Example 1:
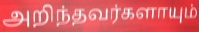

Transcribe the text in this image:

அறிந்தவர்களாயும்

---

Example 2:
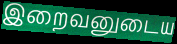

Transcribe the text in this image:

இறைவனுடைய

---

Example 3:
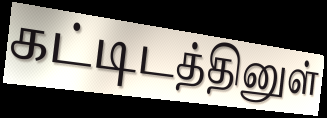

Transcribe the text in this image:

கட்டிடத்தினுள்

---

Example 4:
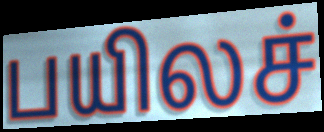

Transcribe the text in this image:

பயிலச்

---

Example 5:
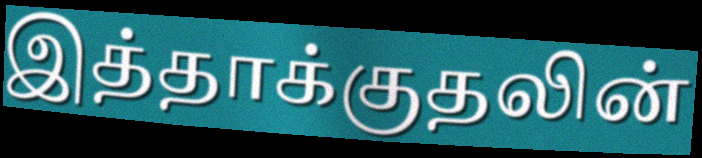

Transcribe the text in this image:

இத்தாக்குதலின்